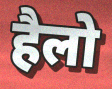
हैलो